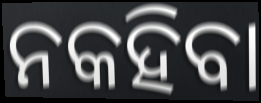
ନକହିବା